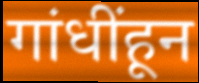
गांधींहून